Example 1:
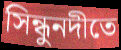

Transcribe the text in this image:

সিন্ধুনদীতে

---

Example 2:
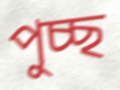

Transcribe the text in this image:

পুচ্ছ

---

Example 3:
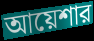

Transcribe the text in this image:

আয়েশার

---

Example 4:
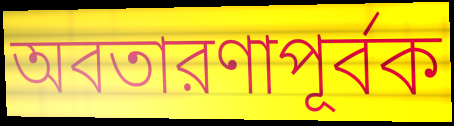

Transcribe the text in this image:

অবতারণাপূর্বক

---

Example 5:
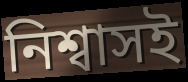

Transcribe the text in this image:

নিশ্বাসই